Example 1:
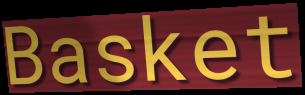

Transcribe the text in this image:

Basket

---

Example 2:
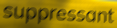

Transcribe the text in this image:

suppressant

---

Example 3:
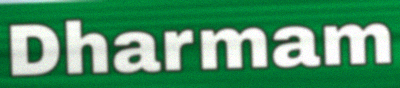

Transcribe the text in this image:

Dharmam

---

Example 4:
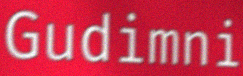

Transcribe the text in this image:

Gudimni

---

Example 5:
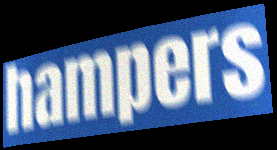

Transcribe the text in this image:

hampers